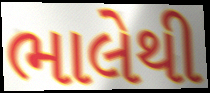
ભાલેથી